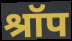
श्रॉप